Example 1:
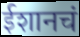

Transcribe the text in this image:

ईशानचं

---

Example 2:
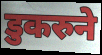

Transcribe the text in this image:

डुकरुने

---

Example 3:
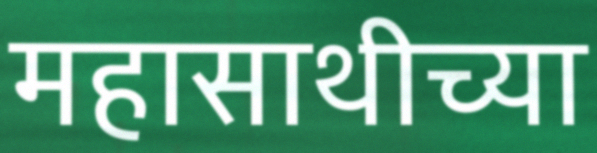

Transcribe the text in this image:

महासाथीच्या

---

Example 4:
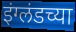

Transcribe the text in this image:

इंग्लंडच्या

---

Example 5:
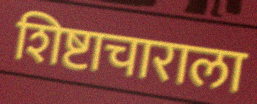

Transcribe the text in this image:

शिष्टाचाराला